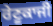
ਰੇਣੂਕਾਜੀ